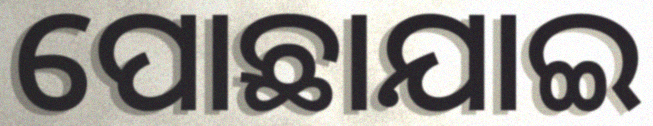
ପୋଛାଯାଇ